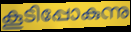
കൂടിപ്പോകുന്നു